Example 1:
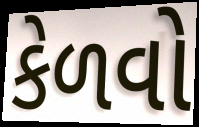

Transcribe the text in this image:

કેળવો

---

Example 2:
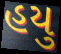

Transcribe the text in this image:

હયુ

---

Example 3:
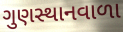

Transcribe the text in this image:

ગુણસ્થાનવાળા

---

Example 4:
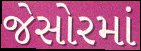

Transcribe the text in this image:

જેસોરમાં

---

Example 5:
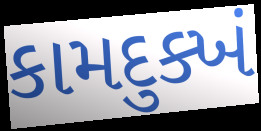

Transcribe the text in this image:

કામદુક્ખં